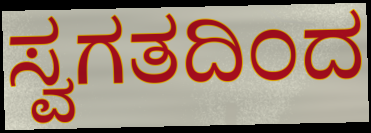
ಸ್ವಗತದಿಂದ